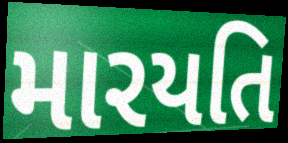
મારયતિ